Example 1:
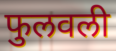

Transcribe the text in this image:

फुलवली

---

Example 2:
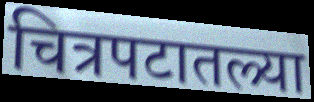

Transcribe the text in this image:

चित्रपटातल्या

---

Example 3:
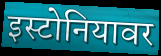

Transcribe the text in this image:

इस्टोनियावर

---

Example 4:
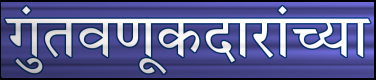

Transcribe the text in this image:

गुंतवणूकदारांच्या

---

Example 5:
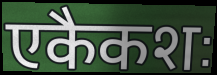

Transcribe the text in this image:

एकैकशः